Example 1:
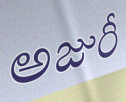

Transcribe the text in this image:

అజురీ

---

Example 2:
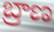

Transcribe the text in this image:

బ్రాణ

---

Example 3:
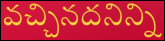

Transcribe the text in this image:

వచ్చినదనిన్ని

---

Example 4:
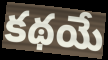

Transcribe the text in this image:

కథయే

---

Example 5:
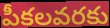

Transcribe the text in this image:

పీకలవరకు